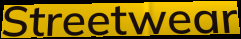
Streetwear